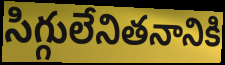
సిగ్గులేనితనానికి